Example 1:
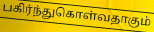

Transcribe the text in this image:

பகிர்ந்துகொள்வதாகும்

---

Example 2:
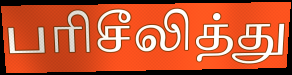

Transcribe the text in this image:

பரிசீலித்து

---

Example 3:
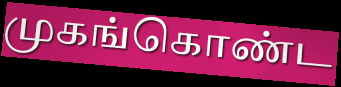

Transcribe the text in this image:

முகங்கொண்ட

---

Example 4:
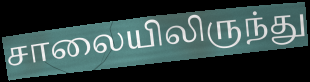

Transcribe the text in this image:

சாலையிலிருந்து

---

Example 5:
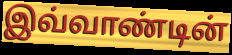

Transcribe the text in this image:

இவ்வாண்டின்